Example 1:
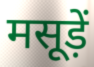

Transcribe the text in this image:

मसूड़ें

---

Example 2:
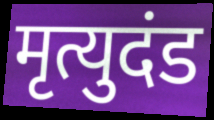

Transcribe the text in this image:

मृत्युदंड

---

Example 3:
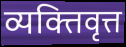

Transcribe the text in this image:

व्यक्तिवृत्त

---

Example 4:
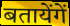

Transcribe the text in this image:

बतायेंगें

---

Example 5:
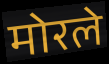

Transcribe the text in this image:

मोरले